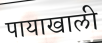
पायाखाली